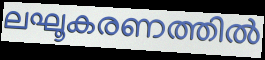
ലഘൂകരണത്തിൽ